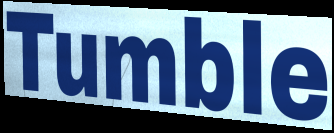
Tumble